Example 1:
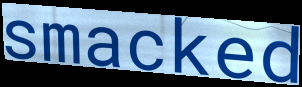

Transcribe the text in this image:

smacked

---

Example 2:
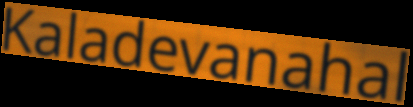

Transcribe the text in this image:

Kaladevanahal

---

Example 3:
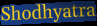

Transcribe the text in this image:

Shodhyatra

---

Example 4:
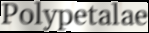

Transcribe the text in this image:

Polypetalae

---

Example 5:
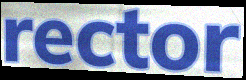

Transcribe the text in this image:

rector